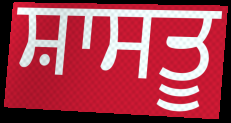
ਸ਼ਾਸਤੂ